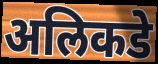
अलिकडे